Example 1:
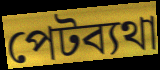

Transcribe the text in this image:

পেটব্যথা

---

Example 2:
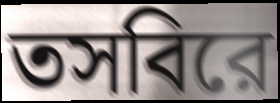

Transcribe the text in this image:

তসবিরে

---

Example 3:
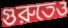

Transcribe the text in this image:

গুরুতেও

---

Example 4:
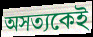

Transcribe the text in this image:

অসত্যকেই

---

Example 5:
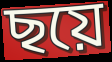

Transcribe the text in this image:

ছয়ে